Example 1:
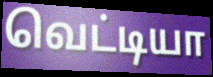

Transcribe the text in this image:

வெட்டியா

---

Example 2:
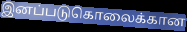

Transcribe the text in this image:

இனப்படுகொலைக்கான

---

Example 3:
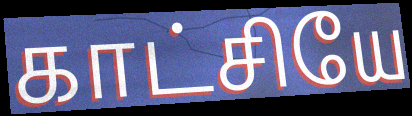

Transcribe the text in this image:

காட்சியே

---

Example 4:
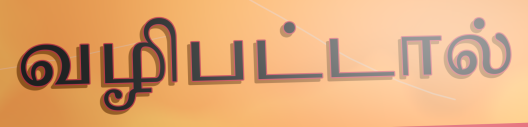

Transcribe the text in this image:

வழிபட்டால்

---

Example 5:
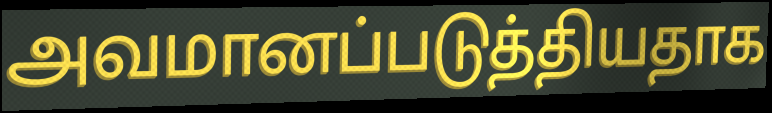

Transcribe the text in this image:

அவமானப்படுத்தியதாக